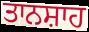
ਤਾਨਸ਼ਾਹ